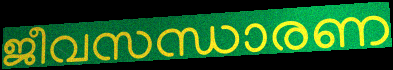
ജീവസന്ധാരണ